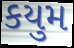
કયુમ